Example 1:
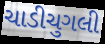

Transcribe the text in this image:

ચાડીચુગલી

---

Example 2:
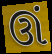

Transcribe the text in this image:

ઊં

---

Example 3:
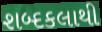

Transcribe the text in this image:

શબ્દકલાથી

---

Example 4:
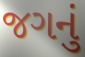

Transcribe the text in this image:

જગનું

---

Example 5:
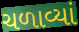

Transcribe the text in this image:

ચળાવ્યાં